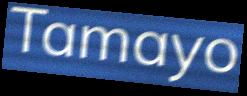
Tamayo